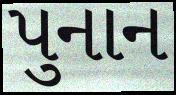
પુનાન